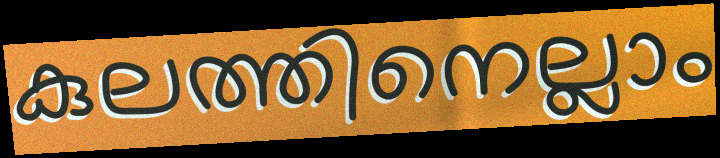
കുലത്തിനെല്ലാം